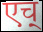
एच्